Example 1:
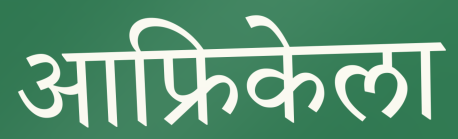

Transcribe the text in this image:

आफ्रिकेला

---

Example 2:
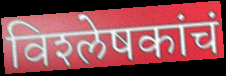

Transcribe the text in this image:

विश्लेषकांचं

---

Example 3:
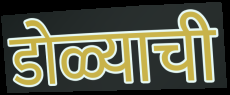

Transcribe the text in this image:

डोळ्याची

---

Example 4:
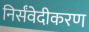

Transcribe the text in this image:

निर्संवेदीकरण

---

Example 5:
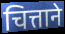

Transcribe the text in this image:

चित्ताने